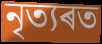
নৃত্যৰত